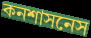
কনশাসনেস